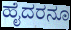
ಹೈದರನೂ